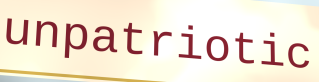
unpatriotic